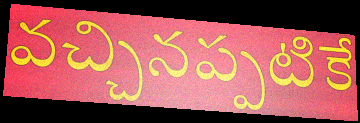
వచ్చినప్పటికే